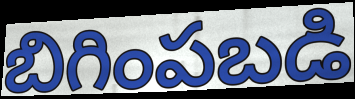
బిగింపబడి